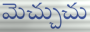
మెచ్చుచు